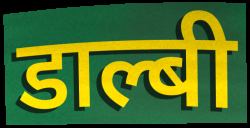
डाल्बी